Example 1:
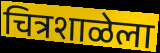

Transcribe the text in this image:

चित्रशाळेला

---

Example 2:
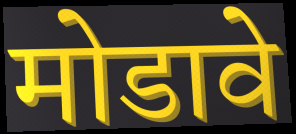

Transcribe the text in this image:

मोडावे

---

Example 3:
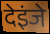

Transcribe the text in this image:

देइंजे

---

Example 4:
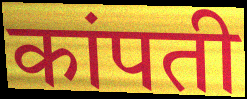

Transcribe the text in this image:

कांपती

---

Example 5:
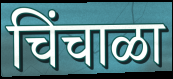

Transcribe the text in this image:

चिंचाळा